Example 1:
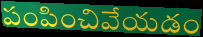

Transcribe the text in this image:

పంపించివేయడం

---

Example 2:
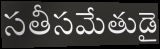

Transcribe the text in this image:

సతీసమేతుడై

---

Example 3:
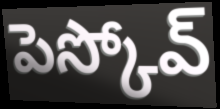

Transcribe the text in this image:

పెస్కోవ్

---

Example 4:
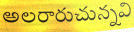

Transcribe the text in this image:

అలరారుచున్నవి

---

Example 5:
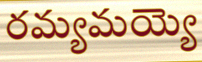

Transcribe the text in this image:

రమ్యమయ్యె